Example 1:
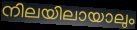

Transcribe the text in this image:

നിലയിലായാലും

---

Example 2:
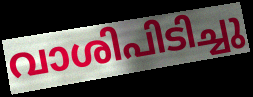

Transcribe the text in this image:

വാശിപിടിച്ചു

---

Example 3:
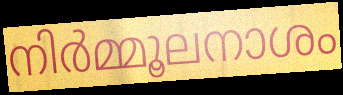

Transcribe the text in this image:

നിർമ്മൂലനാശം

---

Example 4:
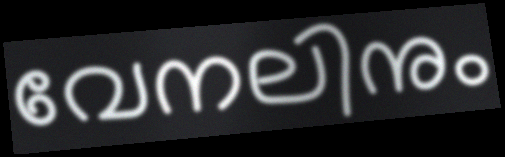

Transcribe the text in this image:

വേനലിനും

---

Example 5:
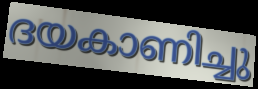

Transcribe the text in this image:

ദയകാണിച്ചു